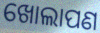
ଖୋଲାପଣ